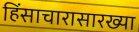
हिंसाचारासारख्या